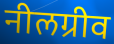
नीलग्रीव